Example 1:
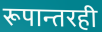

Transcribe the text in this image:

रूपान्तरही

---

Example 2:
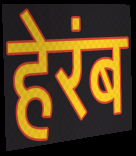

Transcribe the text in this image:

हेरंब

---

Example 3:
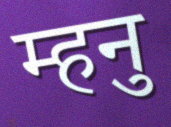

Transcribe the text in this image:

म्हनु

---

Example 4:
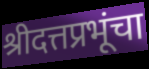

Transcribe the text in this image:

श्रीदत्तप्रभूंचा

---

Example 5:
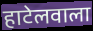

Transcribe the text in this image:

हाटेलवाला